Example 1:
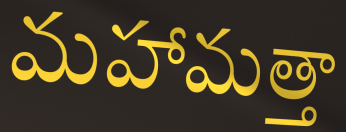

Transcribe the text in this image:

మహామత్తా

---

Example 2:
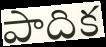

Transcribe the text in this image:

పాదిక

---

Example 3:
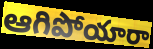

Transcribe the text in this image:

ఆగిపోయారా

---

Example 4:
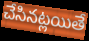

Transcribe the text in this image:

చేసినట్లయితే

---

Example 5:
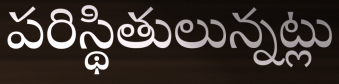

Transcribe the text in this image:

పరిస్థితులున్నట్లు